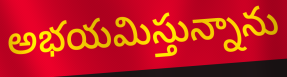
అభయమిస్తున్నాను